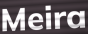
Meira